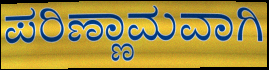
ಪರಿಣ್ಣಾಮವಾಗಿ